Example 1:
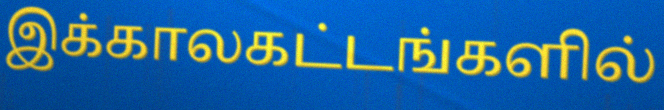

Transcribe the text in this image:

இக்காலகட்டங்களில்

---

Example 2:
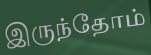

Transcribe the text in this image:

இருந்தோம்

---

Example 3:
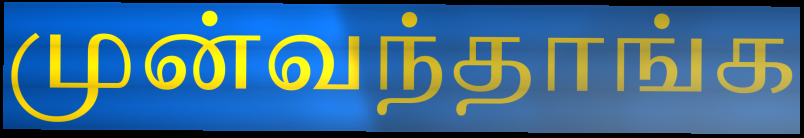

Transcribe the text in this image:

முன்வந்தாங்க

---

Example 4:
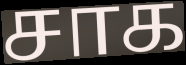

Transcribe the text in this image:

சாக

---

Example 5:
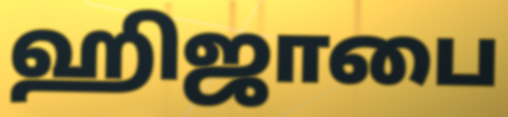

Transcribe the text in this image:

ஹிஜாபை